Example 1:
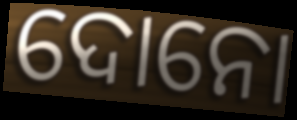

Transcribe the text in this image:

ଦୋନୋ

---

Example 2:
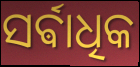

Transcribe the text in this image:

ସର୍ଵାଧିକ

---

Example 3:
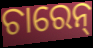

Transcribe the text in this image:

ଚାରେନ୍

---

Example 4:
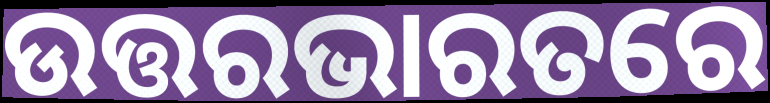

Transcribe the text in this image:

ଉତ୍ତରଭାରତରେ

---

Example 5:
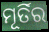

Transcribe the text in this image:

ମୂର୍ତିର